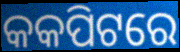
କକପିଟରେ